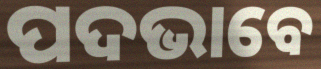
ପଦଭାବେ